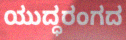
ಯುದ್ಧರಂಗದ